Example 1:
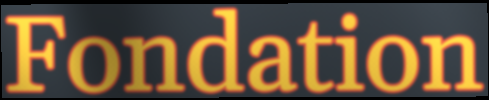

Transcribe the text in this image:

Fondation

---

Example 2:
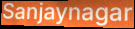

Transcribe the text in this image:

Sanjaynagar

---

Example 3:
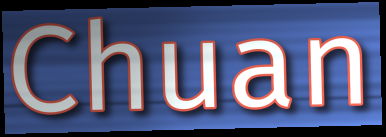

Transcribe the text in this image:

Chuan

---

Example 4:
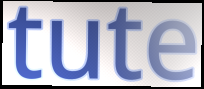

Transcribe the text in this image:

tute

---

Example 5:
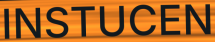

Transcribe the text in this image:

INSTUCEN